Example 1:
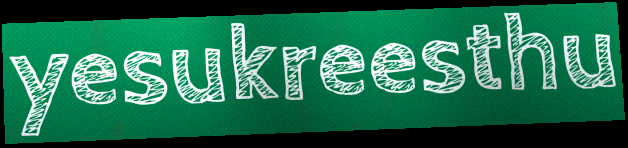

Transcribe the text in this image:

yesukreesthu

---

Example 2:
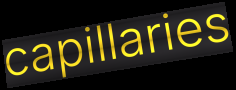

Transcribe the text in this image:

capillaries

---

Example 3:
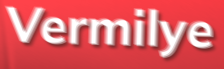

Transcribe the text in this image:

Vermilye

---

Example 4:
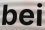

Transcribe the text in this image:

bei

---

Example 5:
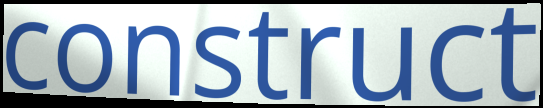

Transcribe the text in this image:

construct